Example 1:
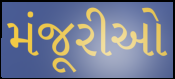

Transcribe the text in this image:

મંજૂરીઓ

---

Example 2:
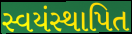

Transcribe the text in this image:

સ્વયંસ્થાપિત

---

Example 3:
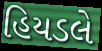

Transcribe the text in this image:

હિયડલે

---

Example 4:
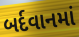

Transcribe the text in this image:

બર્દવાનમાં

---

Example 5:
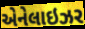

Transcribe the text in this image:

એનેલાઇઝર